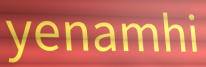
yenamhi